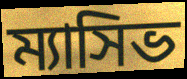
ম্যাসিভ